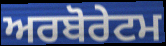
ਅਰਬੋਰੇਟਮ